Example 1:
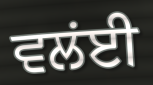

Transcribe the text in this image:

ਵਲਂਈ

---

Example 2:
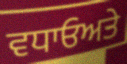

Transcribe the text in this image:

ਵਧਾਓਅਤੇ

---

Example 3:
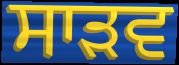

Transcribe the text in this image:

ਸਾੜਵ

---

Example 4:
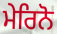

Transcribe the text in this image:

ਮੇਰਿਨੋ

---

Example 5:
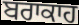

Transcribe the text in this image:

ਬਰਾਕਾਹ